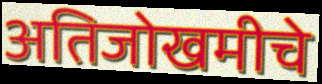
अतिजोखमीचे